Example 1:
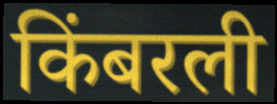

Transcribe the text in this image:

किंबरली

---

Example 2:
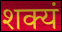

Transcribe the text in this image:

शक्यं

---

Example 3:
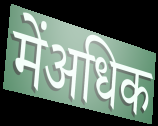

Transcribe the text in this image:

मेंअधिक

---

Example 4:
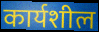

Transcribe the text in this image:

कार्यशील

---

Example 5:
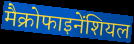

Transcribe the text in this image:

मैक्रोफाइनेंशियल